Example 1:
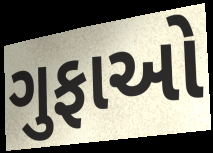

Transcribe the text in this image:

ગુફાઓ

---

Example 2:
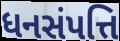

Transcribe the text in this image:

ધનસંપત્તિ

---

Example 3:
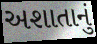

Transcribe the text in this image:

અશાતાનું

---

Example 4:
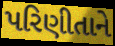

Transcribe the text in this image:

પરિણીતાને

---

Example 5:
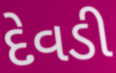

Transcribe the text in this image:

દેવડી